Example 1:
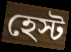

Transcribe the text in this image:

হেস্ট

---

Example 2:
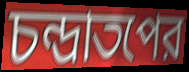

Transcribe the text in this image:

চন্দ্রাতপের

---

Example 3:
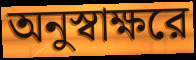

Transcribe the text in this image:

অনুস্বাক্ষরে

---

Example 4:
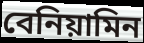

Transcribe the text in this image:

বেনিয়ামিন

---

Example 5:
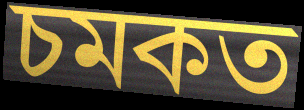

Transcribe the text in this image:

চমকত